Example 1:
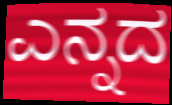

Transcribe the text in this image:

ಎನ್ನದ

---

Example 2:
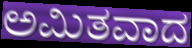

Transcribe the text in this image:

ಅಮಿತವಾದ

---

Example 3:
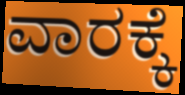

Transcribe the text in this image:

ವಾರಕ್ಕೆ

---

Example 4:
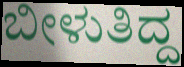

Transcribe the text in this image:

ಬೀಳುತಿದ್ದ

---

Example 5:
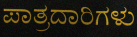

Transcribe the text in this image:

ಪಾತ್ರದಾರಿಗಳು